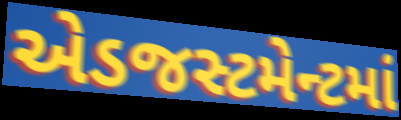
એડજસ્ટમેન્ટમાં